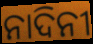
ନାଦିନୀ